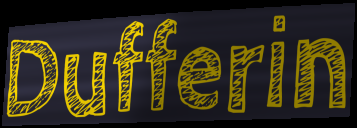
Dufferin